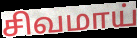
சிவமாய்